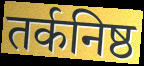
तर्कनिष्ठ